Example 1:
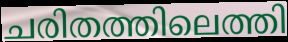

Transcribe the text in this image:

ചരിതത്തിലെത്തി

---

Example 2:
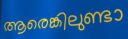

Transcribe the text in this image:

ആരെങ്കിലുണ്ടാ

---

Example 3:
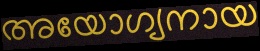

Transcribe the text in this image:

അയോഗ്യനായ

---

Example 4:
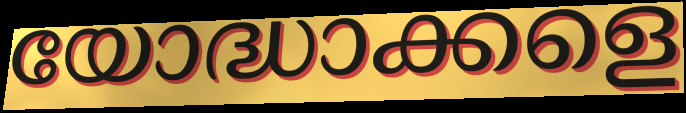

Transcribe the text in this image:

യോദ്ധാക്കളെ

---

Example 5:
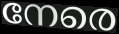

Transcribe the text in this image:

നേരെ